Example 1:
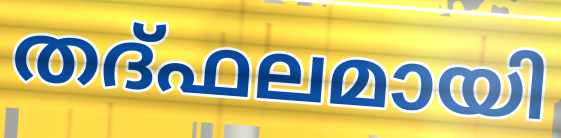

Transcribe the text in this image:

തദ്ഫലമായി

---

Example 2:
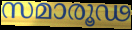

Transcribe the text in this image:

സമാരൂഢ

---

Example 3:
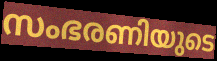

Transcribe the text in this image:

സംഭരണിയുടെ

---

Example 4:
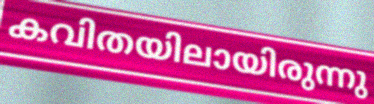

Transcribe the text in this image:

കവിതയിലായിരുന്നു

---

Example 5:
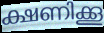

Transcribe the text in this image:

ക്ഷണിക്കൂ